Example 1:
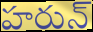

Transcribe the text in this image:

హరున్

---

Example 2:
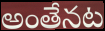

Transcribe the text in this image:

అంతేనట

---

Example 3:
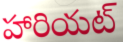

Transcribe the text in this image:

హారియట్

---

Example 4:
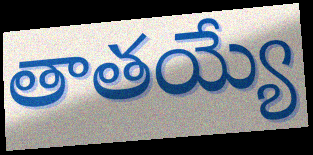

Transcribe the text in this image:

తాతయ్యే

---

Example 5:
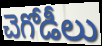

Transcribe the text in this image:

చెగోడీలు